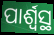
ପାର୍ଶ୍ୱସ୍ଥ